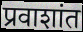
प्रवाशांत